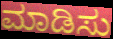
ಮಾಡಿಸು